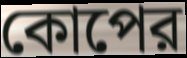
কোপের